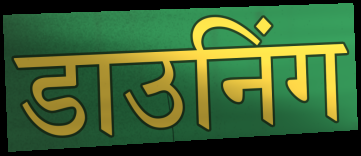
डाउनिंग